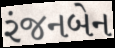
રંજનબેન